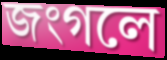
জংগলে